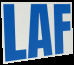
LAF